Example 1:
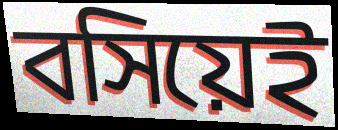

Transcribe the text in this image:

বসিয়েই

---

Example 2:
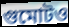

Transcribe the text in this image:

গুমোটও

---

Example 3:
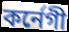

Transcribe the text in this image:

কর্নেগী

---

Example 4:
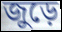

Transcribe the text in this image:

জুড়ে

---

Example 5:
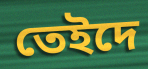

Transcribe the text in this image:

তেইদে